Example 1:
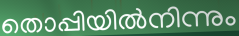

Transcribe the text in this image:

തൊപ്പിയിൽനിന്നും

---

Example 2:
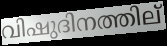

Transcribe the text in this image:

വിഷുദിനത്തില്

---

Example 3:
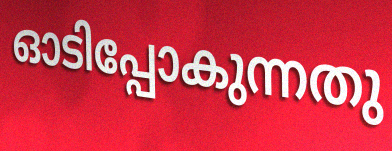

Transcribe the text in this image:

ഓടിപ്പോകുന്നതു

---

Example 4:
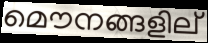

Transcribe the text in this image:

മൌനങ്ങളില്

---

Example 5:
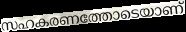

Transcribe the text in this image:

സഹകരണത്തോടെയാണ്